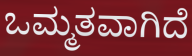
ಒಮ್ಮತವಾಗಿದೆ